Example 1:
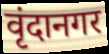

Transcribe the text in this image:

वृंदानगर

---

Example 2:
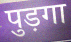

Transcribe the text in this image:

पुड़गा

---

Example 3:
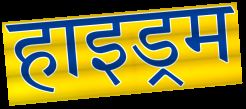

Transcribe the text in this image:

हाइड्रम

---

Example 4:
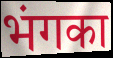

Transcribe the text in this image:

भंगका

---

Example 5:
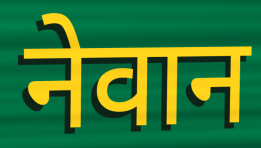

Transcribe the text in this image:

नेवान